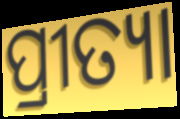
ପ୍ରୀତ୍ୟା